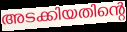
അടക്കിയതിന്റെ